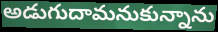
అడుగుదామనుకున్నాను